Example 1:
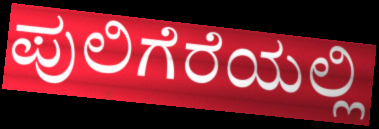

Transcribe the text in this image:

ಪುಲಿಗೆರೆಯಲ್ಲಿ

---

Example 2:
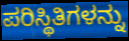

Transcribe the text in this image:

ಪರಿಸ್ಥಿತಿಗಳನ್ನು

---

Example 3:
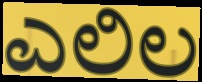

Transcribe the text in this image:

ಎಲಿಲ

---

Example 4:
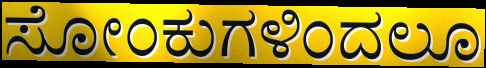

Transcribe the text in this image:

ಸೋಂಕುಗಳಿಂದಲೂ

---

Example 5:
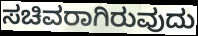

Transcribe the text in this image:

ಸಚಿವರಾಗಿರುವುದು